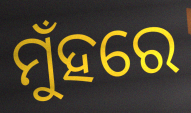
ମୁଁହରେ